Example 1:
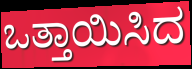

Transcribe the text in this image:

ಒತ್ತಾಯಿಸಿದ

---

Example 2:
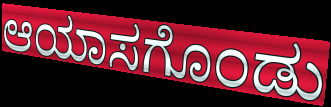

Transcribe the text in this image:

ಆಯಾಸಗೊಂಡು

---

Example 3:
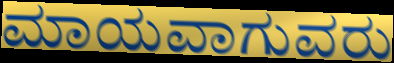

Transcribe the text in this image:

ಮಾಯವಾಗುವರು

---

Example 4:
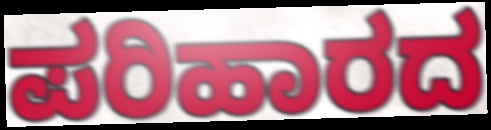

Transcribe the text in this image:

ಪರಿಹಾರದ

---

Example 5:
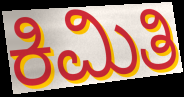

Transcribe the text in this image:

ಕಿಮಿತಿ